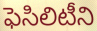
ఫెసిలిటీని